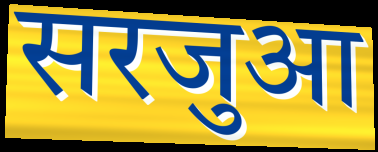
सरजुआ